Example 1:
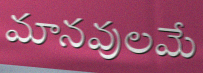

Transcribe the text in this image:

మానవులమే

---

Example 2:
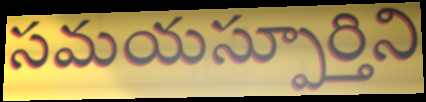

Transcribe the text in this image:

సమయస్పూర్తిని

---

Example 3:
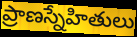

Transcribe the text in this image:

ప్రాణస్నేహితులు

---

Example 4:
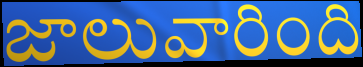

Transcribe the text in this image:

జాలువారింది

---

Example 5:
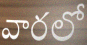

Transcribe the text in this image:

వారలో